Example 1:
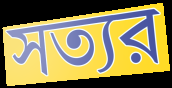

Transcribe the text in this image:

সত্যর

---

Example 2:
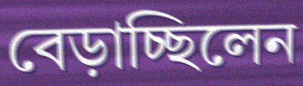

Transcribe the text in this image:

বেড়াচ্ছিলেন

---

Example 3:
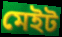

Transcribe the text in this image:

মেইট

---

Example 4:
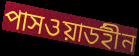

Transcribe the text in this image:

পাসওয়ার্ডহীন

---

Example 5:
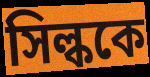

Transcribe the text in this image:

সিল্ককে